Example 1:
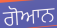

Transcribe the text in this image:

ਗੋਆਨ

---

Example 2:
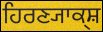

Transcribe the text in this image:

ਹਿਰਣ੍ਯਾਕ੍ਸ਼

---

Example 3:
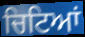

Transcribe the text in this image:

ਚਿਟਿਆਂ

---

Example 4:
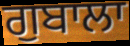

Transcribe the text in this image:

ਗੁਬਾਲਾ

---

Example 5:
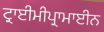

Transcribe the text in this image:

ਟ੍ਰਾਈਮੀਪ੍ਰਾਮਾਈਨ